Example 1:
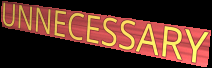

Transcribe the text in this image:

UNNECESSARY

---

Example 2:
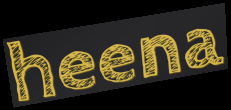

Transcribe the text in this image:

heena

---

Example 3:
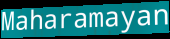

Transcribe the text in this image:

Maharamayan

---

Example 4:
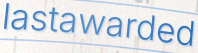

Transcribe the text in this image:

lastawarded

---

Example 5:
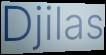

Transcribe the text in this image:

Djilas